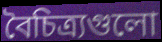
বৈচিত্র্যগুলো